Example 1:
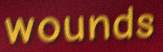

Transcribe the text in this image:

wounds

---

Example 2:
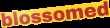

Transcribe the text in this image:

blossomed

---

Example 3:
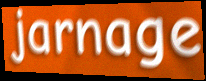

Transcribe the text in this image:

jarnage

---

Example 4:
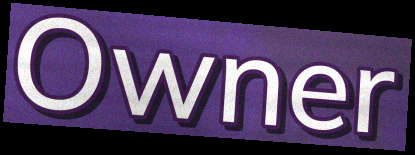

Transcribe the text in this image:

Owner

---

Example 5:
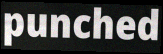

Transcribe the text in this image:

punched